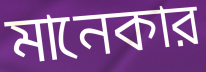
মানেকার